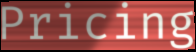
Pricing